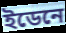
ইডেনে